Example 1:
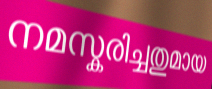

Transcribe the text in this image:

നമസ്കരിച്ചതുമായ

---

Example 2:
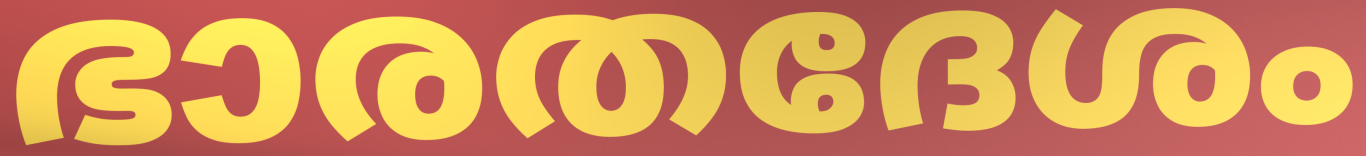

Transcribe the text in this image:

ഭാരതദേശം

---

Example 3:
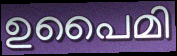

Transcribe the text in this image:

ഉപൈമി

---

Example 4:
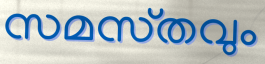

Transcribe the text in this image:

സമസ്‌തവും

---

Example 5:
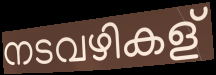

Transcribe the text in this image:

നടവഴികള്